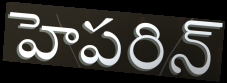
హెపరిన్